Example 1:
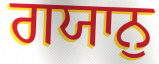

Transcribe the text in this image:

ਗਯਾਨੁ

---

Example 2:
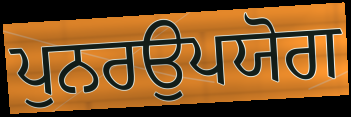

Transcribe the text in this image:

ਪੁਨਰਉਪਯੋਗ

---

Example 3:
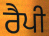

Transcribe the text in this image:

ਰੈਪੀ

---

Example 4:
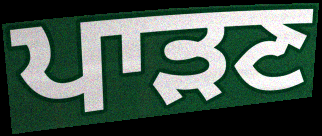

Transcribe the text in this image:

ਪਾੜਣ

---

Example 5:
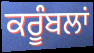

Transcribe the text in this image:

ਕਰੂੰਬਲਾਂ